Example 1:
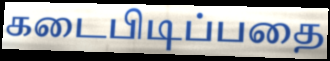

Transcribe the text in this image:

கடைபிடிப்பதை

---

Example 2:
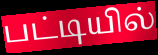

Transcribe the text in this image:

பட்டியில்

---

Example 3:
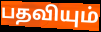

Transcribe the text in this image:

பதவியும்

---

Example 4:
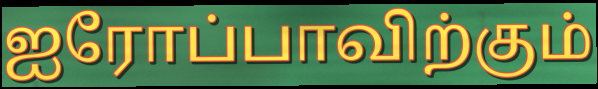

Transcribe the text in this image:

ஐரோப்பாவிற்கும்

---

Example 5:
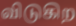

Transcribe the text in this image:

விடுகிற